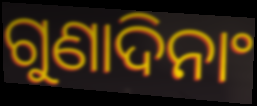
ଗୁଣାଦିନାଂ